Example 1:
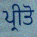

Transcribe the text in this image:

ਪ੍ਰੀਤੋ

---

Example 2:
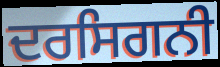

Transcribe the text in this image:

ਦਰਸਿਗਨੀ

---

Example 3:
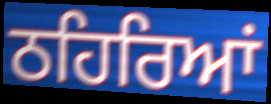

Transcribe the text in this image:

ਠਹਿਰਿਆਂ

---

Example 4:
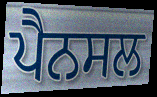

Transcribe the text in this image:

ਪੈਨਸਲ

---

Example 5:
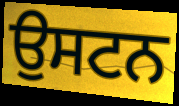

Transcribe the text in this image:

ਉਸਟਨ